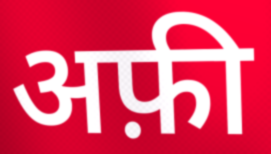
अफ़ी